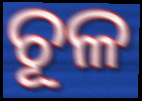
ଚୂଳ